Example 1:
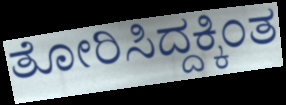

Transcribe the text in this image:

ತೋರಿಸಿದ್ದಕ್ಕಿಂತ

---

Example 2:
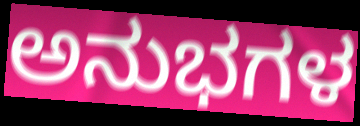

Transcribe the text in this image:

ಅನುಭಗಳ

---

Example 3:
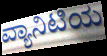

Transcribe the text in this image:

ವ್ಯಾನಿಟಿಯ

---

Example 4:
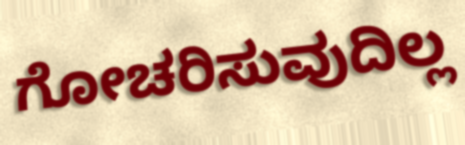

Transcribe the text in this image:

ಗೋಚರಿಸುವುದಿಲ್ಲ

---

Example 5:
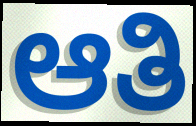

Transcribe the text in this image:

ಆತಿ